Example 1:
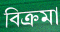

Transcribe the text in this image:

বিক্রমা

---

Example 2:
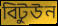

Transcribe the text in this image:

বিটুউন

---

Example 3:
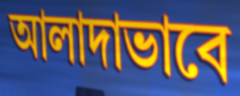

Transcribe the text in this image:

আলাদাভাবে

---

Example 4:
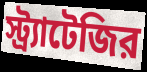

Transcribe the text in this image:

স্ট্র্যাটেজির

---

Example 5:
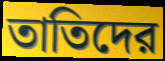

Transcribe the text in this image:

তাতিদের